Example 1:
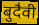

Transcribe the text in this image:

बुदैवी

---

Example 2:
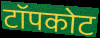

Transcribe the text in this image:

टॉपकोट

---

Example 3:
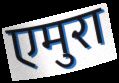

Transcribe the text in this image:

एमुरा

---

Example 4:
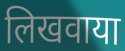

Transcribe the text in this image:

लिखवाया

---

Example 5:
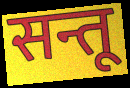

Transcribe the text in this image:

सन्तू